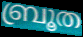
ബ്രൂത